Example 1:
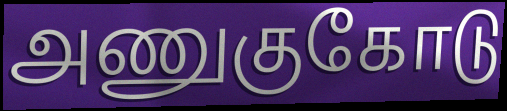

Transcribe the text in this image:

அணுகுகோடு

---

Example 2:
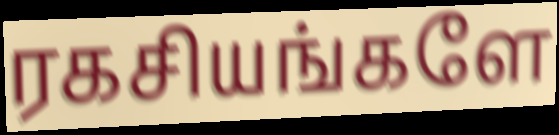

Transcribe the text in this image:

ரகசியங்களே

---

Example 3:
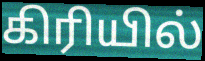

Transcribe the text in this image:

கிரியில்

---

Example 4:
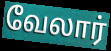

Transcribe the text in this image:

வேலார்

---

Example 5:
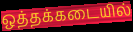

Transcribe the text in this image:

ஒத்தக்கடையில்